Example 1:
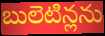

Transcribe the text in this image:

బులెటిన్లను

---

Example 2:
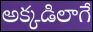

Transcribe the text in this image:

అక్కడిలాగే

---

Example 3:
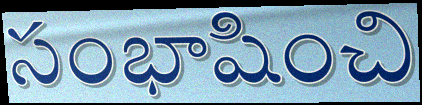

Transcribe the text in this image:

సంభాషించి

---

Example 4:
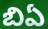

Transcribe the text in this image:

బిఏ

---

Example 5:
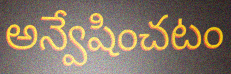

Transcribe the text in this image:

అన్వేషించటం